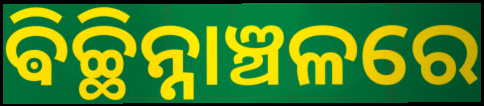
ଵିଚ୍ଛିନ୍ନାଞ୍ଚଳରେ